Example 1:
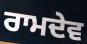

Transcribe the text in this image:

ਰਾਮਦੇਵ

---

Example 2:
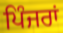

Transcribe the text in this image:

ਪਿੰਜਰਾਂ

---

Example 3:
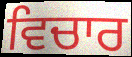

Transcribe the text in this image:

ਵਿਚਾਰ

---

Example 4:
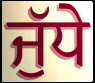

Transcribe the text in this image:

ਜੁੱਧੇ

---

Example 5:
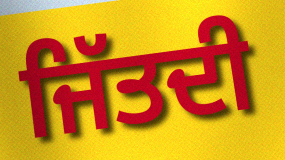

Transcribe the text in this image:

ਜਿੱਤਦੀ